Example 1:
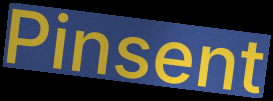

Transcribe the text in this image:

Pinsent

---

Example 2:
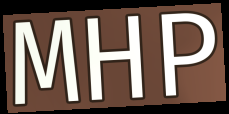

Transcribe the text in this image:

MHP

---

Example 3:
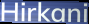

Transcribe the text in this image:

Hirkani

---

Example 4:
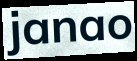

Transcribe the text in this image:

janao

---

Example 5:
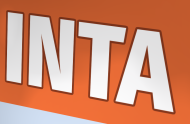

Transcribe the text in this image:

INTA